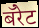
बॅरेट